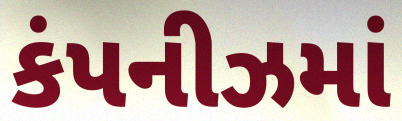
કંપનીઝમાં